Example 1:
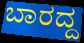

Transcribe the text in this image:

ಬಾರದ್ದ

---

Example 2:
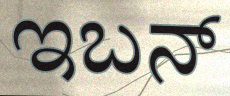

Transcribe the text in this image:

ಇಬನ್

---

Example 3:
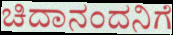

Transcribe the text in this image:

ಚಿದಾನಂದನಿಗೆ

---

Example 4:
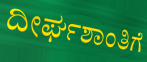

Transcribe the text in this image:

ದೀರ್ಘಶಾಂತಿಗೆ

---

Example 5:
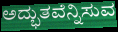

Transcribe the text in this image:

ಅದ್ಭುತವೆನ್ನಿಸುವ